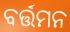
ବର୍ତ୍ତମନ